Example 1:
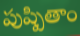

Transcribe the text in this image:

పుష్పితాం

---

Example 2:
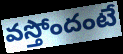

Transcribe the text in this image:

వస్తోందంటే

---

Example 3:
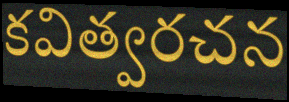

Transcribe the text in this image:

కవిత్వరచన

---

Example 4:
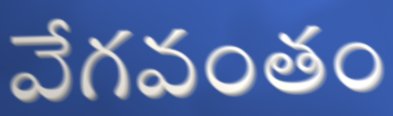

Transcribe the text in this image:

వేగవంతం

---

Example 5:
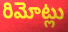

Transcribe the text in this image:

రిమోట్లు